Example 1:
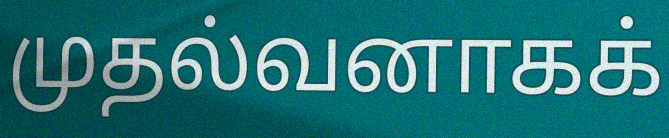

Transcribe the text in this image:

முதல்வனாகக்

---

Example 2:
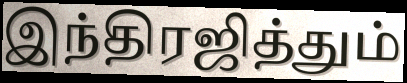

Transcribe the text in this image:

இந்திரஜித்தும்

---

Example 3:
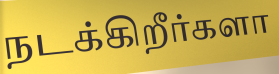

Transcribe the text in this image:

நடக்கிறீர்களா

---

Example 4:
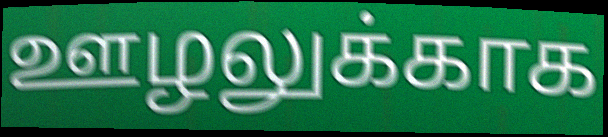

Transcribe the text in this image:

ஊழலுக்காக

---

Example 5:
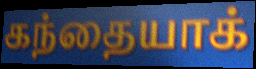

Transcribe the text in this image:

கந்தையாக்